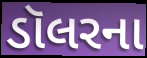
ડૉલરના